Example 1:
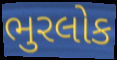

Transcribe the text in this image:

ભુરલોક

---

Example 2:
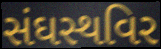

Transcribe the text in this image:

સંઘસ્થવિર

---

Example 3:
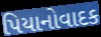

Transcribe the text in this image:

પિયાનોવાદક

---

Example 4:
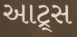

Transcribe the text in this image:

આટ્ર્સ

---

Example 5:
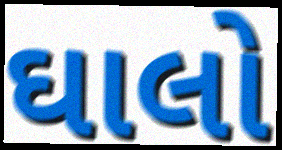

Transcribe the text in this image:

ઘાલો